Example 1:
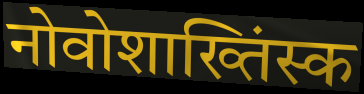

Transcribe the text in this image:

नोवोशाख्तिंस्क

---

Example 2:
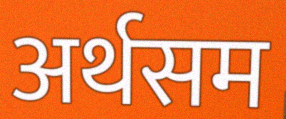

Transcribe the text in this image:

अर्थसम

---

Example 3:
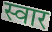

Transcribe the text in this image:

स्‍वार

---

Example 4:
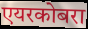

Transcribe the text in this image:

एयरकोबरा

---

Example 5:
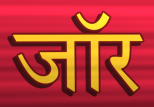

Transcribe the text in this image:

जॉर